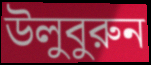
উলুবুরুন